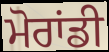
ਮੋਰਾਂਡੀ